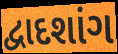
દ્વાદશાંગ